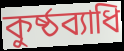
কুষ্ঠব্যাধি